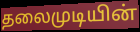
தலைமுடியின்